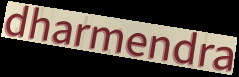
dharmendra